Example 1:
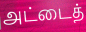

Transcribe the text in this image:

அட்டைத்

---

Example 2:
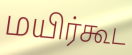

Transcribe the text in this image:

மயிர்கூட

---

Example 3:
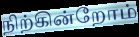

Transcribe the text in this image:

நிற்கின்றோம்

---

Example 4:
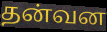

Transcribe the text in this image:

தன்வன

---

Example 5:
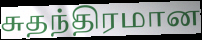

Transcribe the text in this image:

சுதந்திரமான